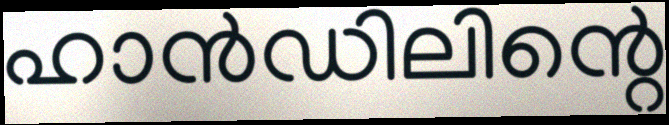
ഹാൻഡിലിന്റെ